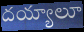
దయ్యాలూ